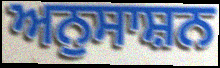
ਅਨੁਸਾਸ਼ਨ